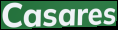
Casares